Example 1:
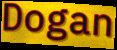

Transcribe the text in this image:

Dogan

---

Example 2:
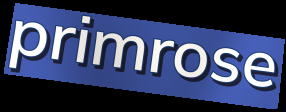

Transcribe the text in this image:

primrose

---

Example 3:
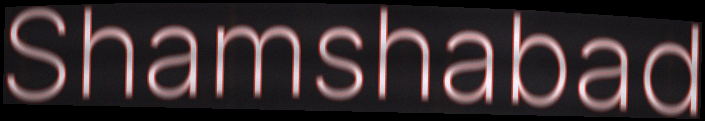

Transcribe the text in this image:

Shamshabad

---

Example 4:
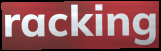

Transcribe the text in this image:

racking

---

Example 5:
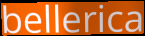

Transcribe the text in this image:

bellerica